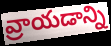
వ్రాయడాన్ని